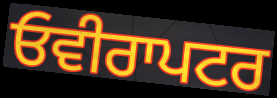
ਓਵੀਰਾਪਟਰ